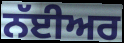
ਨੱਈਅਰ